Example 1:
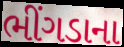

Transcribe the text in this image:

ભીંગડાના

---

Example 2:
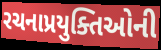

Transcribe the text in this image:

રચનાપ્રયુક્તિઓની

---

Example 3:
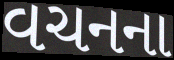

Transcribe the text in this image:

વચનના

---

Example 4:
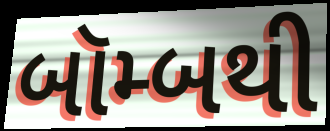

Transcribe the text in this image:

બૉમ્બથી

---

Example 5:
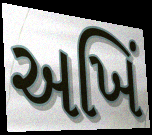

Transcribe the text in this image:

અખિં